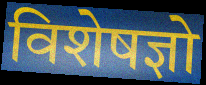
विशेषज्ञो